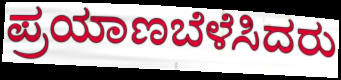
ಪ್ರಯಾಣಬೆಳೆಸಿದರು